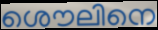
ശൌലിനെ